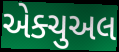
એક્ચુઅલ